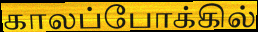
காலப்போக்கில்